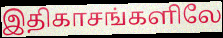
இதிகாசங்களிலே